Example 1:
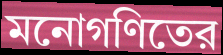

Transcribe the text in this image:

মনোগণিতের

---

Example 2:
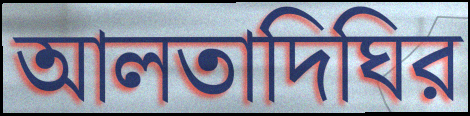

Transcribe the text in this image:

আলতাদিঘির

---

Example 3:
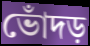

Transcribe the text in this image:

ভোঁদড়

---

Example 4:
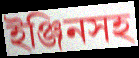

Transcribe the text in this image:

ইঞ্জিনসহ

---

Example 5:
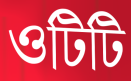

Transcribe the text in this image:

ওটিটি